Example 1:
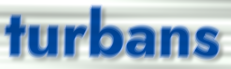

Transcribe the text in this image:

turbans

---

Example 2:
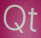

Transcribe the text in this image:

Qt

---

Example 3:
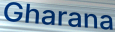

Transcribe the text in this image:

Gharana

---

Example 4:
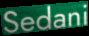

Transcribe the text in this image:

Sedani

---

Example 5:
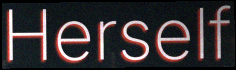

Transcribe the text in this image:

Herself